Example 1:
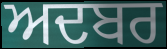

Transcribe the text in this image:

ਅਦਬਰ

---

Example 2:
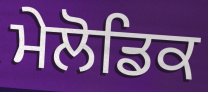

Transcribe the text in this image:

ਮੇਲੋਡਿਕ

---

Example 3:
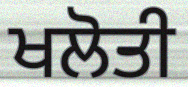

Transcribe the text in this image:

ਖਲੋਤੀ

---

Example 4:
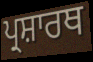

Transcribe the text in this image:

ਪ੍ਰਸ਼ਾਰਥ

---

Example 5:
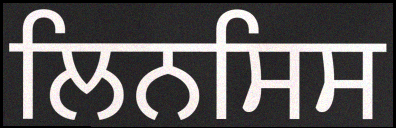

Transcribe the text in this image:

ਲਿਨਸਿਸ